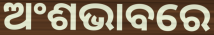
ଅଂଶଭାବରେ